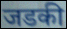
जडकी